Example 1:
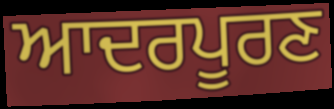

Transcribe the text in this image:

ਆਦਰਪੂਰਣ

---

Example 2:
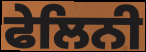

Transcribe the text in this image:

ਫੇਲਿਨੀ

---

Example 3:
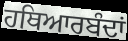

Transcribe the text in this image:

ਹਥਿਆਰਬੰਦਾਂ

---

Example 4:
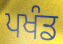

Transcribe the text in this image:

ਪਖੰਡ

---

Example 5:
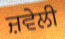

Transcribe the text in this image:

ਜ਼ਵੇਲੀ